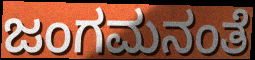
ಜಂಗಮನಂತೆ